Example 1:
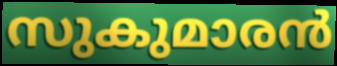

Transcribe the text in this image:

സുകുമാരൻ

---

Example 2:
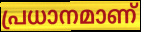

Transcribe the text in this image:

പ്രധാനമാണ്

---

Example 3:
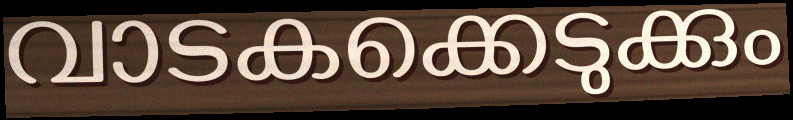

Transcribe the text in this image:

വാടകക്കെടുക്കും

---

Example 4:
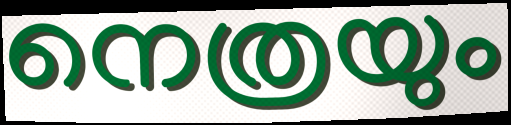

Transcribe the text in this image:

നെത്രയും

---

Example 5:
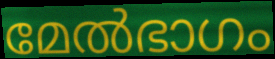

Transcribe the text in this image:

മേൽഭാഗം